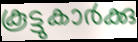
കൂട്ടുകാർക്കു